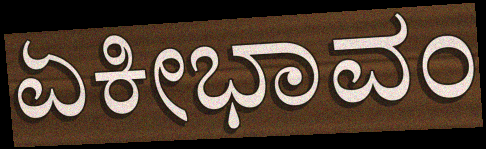
ಏಕೀಭಾವಂ